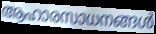
ആഹാരസാധനങ്ങൾ